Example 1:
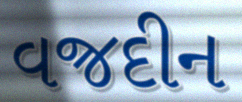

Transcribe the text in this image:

વજ્રદીન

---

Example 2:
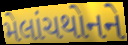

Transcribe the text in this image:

મેલાંચથોનને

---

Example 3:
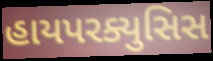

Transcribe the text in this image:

હાયપરક્યુસિસ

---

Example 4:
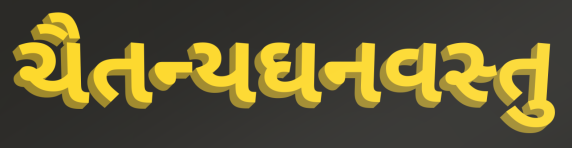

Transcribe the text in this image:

ચૈતન્યઘનવસ્તુ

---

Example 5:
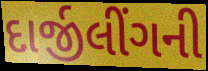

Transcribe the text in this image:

દાર્જીલીંગની